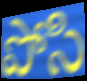
పోసి